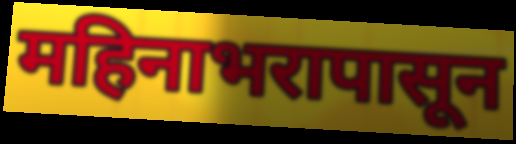
महिनाभरापासून